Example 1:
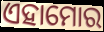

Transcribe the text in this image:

ଏହାମୋର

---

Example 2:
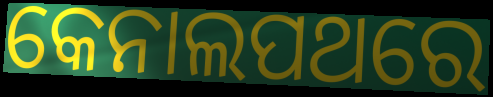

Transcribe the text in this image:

କେନାଲପଥରେ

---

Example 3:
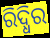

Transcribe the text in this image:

ରିଦ୍ଧିର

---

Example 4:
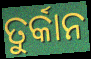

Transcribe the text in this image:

ତୁର୍କାନ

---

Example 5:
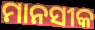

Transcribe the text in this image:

ମାନସୀକ